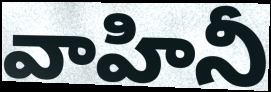
వాహినీ